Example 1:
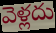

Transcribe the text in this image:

వెళ్లదు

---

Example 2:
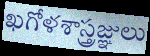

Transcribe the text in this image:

ఖగోళశాస్త్రజ్ఞులు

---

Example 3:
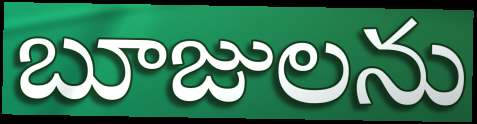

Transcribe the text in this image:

బూజులను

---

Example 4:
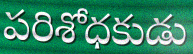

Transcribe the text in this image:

పరిశోధకుడు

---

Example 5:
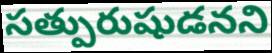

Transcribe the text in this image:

సత్పురుషుడనని